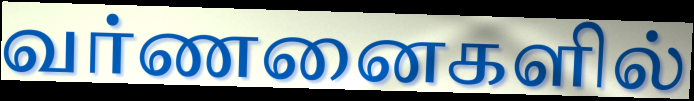
வர்ணனைகளில்